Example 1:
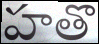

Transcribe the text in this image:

హతొ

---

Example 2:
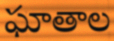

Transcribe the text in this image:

ఘాతాల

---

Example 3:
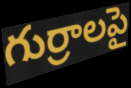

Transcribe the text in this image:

గుర్రాలపై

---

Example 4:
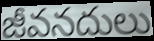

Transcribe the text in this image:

జీవనదులు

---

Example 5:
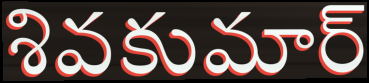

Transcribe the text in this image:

శివకుమార్